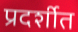
प्रदर्शीत